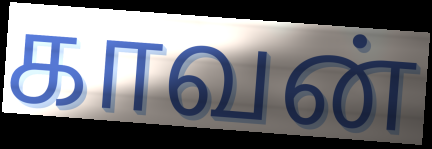
காவன்